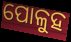
ପୋଳୁହ